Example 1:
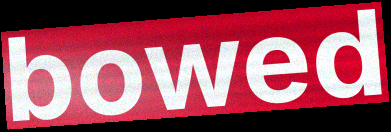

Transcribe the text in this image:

bowed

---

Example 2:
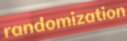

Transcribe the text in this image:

randomization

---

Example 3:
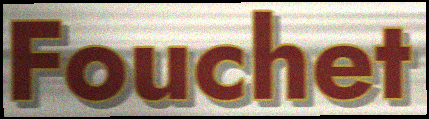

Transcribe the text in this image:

Fouchet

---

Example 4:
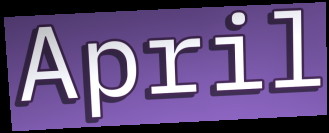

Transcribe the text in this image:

April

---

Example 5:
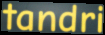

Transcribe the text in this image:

tandri